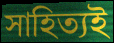
সাহিত্যই